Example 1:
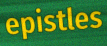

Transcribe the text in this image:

epistles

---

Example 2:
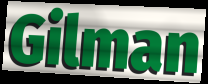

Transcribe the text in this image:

Gilman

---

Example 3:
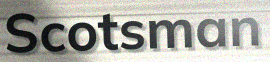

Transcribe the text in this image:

Scotsman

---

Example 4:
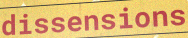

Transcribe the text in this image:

dissensions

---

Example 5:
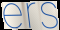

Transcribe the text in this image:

ers